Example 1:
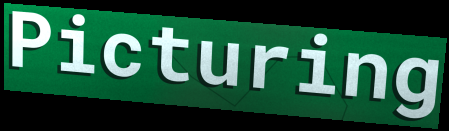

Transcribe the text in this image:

Picturing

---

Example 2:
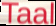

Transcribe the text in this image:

Taal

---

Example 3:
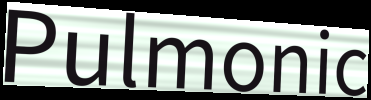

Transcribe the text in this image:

Pulmonic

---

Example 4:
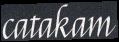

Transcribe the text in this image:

catakam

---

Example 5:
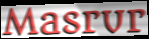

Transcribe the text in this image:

Masrur